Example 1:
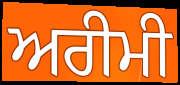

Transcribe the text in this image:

ਅਰੀਮੀ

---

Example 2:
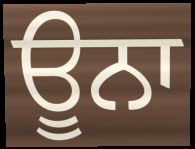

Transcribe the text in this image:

ਊਨਾ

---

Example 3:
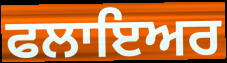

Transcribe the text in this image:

ਫਲਾਇਅਰ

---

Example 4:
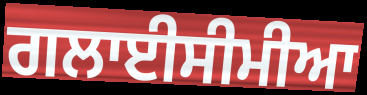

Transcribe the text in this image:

ਗਲਾਈਸੀਮੀਆ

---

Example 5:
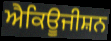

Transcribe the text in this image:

ਐਕਿਊਜੀਸ਼ਨ